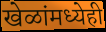
खेळांमध्येही